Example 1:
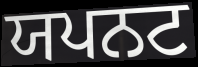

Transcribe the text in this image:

ਯਪਨਟ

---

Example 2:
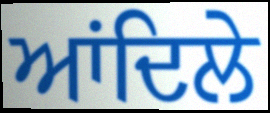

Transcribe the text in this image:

ਆਂਦਿਲੇ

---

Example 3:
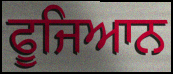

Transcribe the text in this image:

ਫੂਜਿਆਨ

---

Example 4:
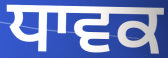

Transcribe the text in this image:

ਧਾਵਕ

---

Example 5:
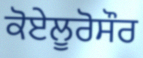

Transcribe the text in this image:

ਕੋਏਲੂਰੋਸੌਰ